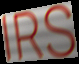
IRS